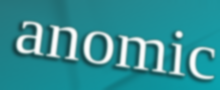
anomic